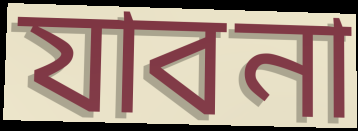
যাবনা